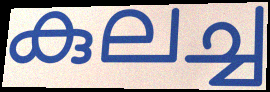
കുലച്ച